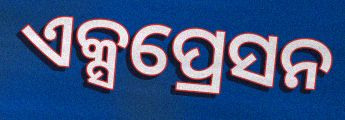
ଏକ୍ସପ୍ରେସନ